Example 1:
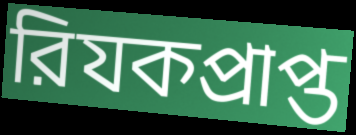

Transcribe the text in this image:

রিযকপ্রাপ্ত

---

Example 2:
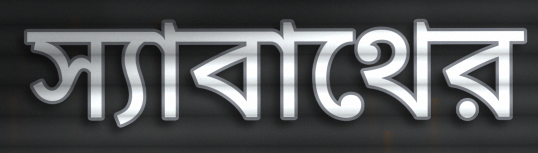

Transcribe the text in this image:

স্যাবাথের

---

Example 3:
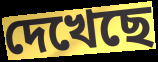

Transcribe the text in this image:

দেখেছে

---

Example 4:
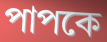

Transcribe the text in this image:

পাপকে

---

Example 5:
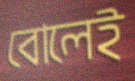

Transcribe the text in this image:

বোলেই